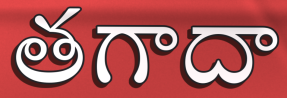
తగాదా